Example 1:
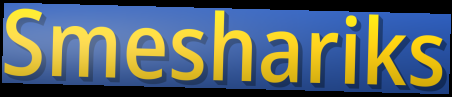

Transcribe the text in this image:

Smeshariks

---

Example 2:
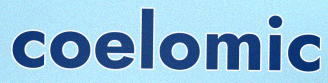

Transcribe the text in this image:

coelomic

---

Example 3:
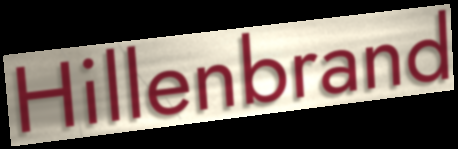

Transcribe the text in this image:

Hillenbrand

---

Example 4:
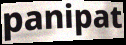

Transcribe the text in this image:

panipat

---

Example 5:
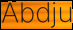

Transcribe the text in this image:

Abdju